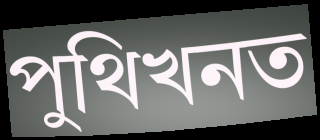
পুথিখনত